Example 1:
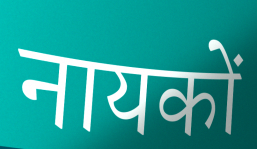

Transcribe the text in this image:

नायकों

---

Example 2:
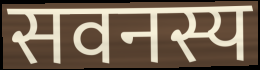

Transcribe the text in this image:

सवनस्य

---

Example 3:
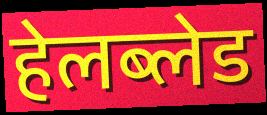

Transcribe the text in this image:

हेलब्लेड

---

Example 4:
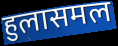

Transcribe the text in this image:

हुलासमल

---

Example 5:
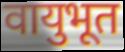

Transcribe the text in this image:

वायुभूत